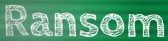
Ransom